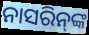
ନାସରିନ୍‌ଙ୍କ